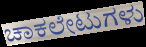
ಚಾಕಲೇಟುಗಳು